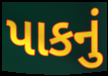
પાકનું